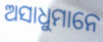
ଅସାଧୁମାନେ